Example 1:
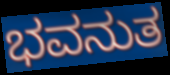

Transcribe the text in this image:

ಭವನುತ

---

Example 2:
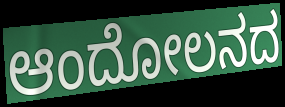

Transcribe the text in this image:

ಆಂದೋಲನದ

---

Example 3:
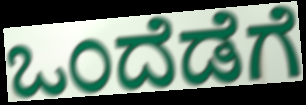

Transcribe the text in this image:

ಒಂದೆಡೆಗೆ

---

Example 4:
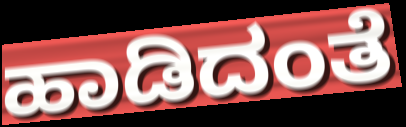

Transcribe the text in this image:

ಹಾಡಿದಂತೆ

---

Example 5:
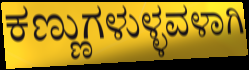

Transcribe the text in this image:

ಕಣ್ಣುಗಳುಳ್ಳವಳಾಗಿ